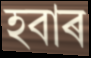
হবাৰ